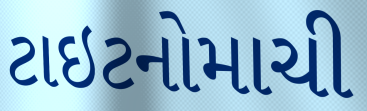
ટાઇટનોમાચી